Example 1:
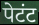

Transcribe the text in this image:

पेटंट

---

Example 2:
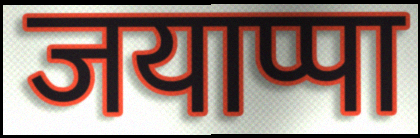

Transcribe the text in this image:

जयाप्पा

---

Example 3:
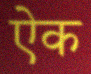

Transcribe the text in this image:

ऐक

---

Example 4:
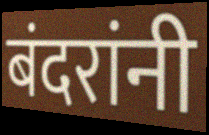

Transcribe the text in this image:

बंदरांनी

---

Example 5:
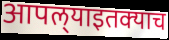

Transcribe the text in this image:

आपल्याइतक्याच